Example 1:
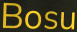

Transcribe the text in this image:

Bosu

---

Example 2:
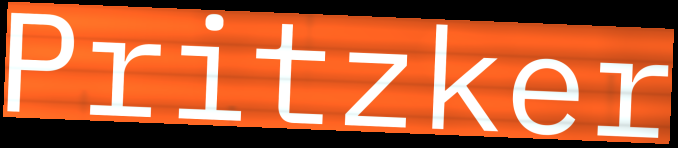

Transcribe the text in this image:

Pritzker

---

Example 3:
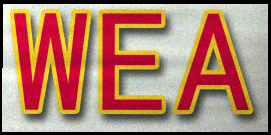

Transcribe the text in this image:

WEA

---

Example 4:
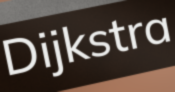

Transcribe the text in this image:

Dijkstra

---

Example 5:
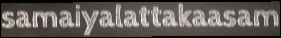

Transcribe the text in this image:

samaiyalattakaasam